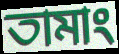
তামাং